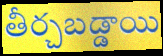
తీర్చబడ్డాయి